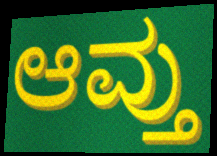
ಆವ್ತು